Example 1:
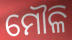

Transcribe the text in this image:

ମୌଳି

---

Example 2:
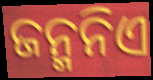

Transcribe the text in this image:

ଜନ୍ମନିଏ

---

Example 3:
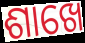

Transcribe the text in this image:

ଶାଖେ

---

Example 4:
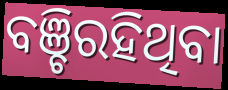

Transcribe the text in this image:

ବଞ୍ଚିରହିଥିବା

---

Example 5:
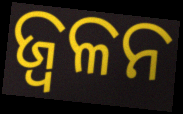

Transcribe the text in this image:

ଜ୍ୱଳନ